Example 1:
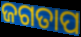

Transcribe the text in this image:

ଜଗତାପ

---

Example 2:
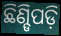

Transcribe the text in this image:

ଛିଣ୍ଡିପଡ଼ି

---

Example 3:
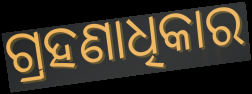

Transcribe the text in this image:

ଗ୍ରହଣାଧିକାର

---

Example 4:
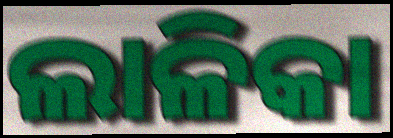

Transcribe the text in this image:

ଲାଳିକା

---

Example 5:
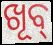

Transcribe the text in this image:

ଖୂବ୍